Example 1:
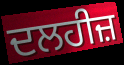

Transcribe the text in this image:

ਦਲਹੀਜ਼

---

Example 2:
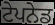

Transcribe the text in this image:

ਟੇਪਨੇਡ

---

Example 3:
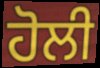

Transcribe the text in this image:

ਹੋਲੀ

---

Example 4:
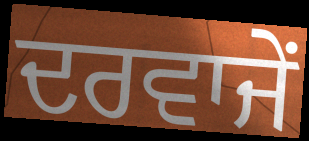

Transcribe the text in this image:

ਦਰਵਾਜੇਂ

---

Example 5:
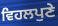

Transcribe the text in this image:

ਵਿਹਲਪੁਣੇ